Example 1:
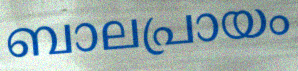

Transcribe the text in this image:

ബാലപ്രായം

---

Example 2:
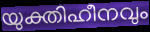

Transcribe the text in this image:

യുക്തിഹീനവും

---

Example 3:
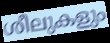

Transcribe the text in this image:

ശീലുകളും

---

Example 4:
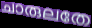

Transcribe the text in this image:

ചാരുലതേ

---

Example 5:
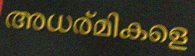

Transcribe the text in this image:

അധര്മികളെ